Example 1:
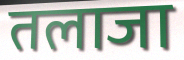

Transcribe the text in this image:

तलाजा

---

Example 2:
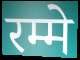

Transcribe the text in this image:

रम्मे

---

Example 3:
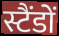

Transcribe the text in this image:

स्टैंडों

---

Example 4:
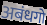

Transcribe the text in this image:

अबंधगो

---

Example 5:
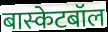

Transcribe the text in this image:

बास्‍केटबॉल